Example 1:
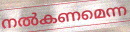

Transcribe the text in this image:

നൽകണമെന്ന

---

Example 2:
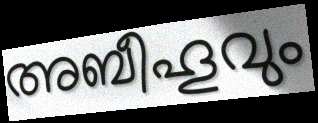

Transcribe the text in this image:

അബീഹൂവും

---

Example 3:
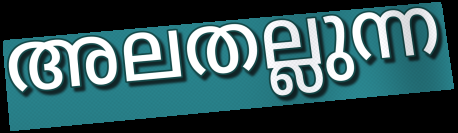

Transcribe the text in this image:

അലതല്ലുന്ന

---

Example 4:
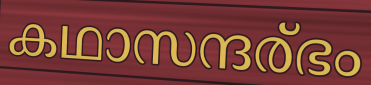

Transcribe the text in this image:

കഥാസന്ദര്ഭം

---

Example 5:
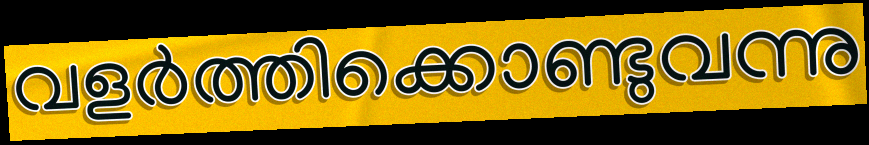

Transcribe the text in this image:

വളർത്തിക്കൊണ്ടുവന്നു